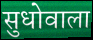
सुधोवाला